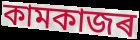
কামকাজৰ